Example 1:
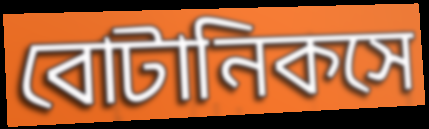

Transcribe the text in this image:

বোটানিকসে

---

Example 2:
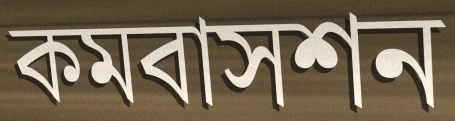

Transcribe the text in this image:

কমবাসশন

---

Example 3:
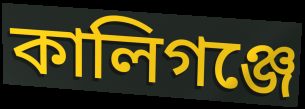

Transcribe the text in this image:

কালিগঞ্জে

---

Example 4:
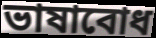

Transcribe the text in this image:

ভাষাবোধ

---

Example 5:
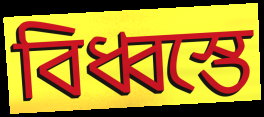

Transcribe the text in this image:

বিধ্বস্তে